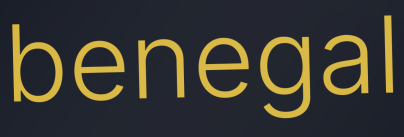
benegal